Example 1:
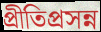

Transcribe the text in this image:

প্রীতিপ্রসন্ন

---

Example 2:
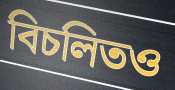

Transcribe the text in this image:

বিচলিতও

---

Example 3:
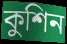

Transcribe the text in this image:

কুশিন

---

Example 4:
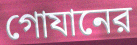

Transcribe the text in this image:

গোযানের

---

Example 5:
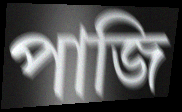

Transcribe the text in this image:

পাজি